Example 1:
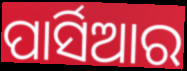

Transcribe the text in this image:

ପାର୍ସିଆର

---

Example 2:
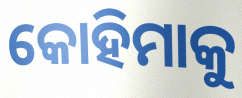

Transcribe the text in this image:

କୋହିମାକୁ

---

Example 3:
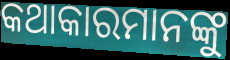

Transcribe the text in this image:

କଥାକାରମାନଙ୍କୁ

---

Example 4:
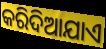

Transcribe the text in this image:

କରିଦିଆଯାଏ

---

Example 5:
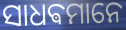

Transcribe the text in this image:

ସାଧଵମାନେ